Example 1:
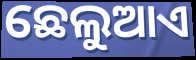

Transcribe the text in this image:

ଛେଲୁଆଏ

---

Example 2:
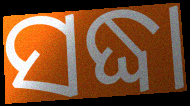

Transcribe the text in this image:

ସଦ୍ଧା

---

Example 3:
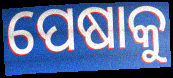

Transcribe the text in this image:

ପେଷାକୁ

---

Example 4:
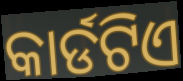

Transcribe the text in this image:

କାର୍ଡଟିଏ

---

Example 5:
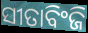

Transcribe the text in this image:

ସୀତାବିଂଜି